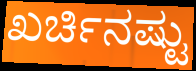
ಖರ್ಚಿನಷ್ಟು